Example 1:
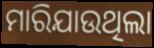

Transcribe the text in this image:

ମାରିଯାଉଥିଲା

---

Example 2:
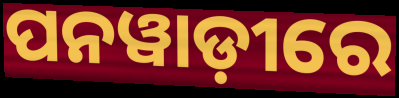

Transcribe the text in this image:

ପନୱାଡ଼ୀରେ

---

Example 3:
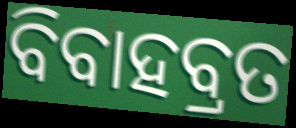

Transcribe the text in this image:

ବିବାହବ୍ରତ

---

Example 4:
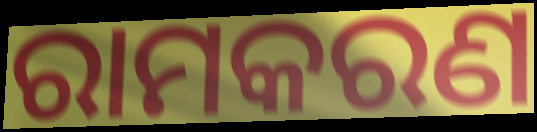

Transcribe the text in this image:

ରାମକରଣ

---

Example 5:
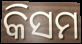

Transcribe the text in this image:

କିସମ